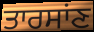
ਤਾਰਸਾਂਣ